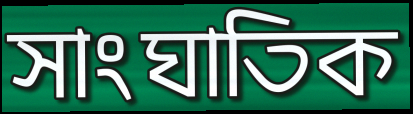
সাংঘাতিক